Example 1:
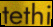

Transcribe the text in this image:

tethi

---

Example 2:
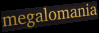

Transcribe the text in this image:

megalomania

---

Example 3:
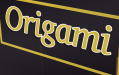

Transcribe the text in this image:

Origami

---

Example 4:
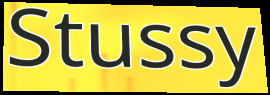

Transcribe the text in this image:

Stussy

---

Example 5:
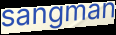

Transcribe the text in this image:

sangman